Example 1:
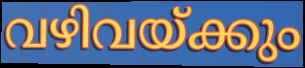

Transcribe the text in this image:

വഴിവയ്ക്കും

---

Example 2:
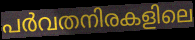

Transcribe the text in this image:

പർവതനിരകളിലെ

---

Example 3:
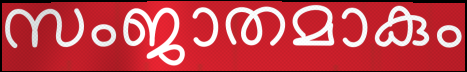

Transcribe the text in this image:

സംജാതമാകും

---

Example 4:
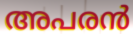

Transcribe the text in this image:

അപരൻ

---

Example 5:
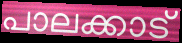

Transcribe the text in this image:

പാലക്കാട്